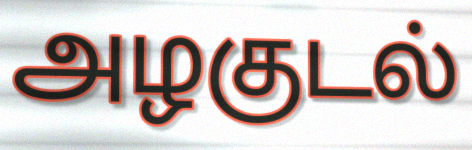
அழகுடல்